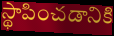
స్థాపించడానికి